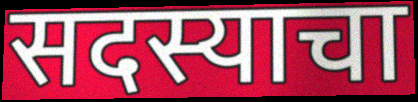
सदस्याचा